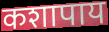
कशापाय